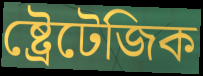
ষ্ট্ৰেটেজিক